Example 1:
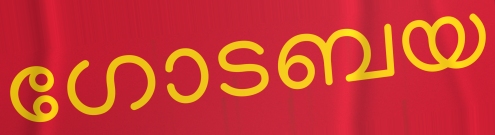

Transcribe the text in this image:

ഗോടബയ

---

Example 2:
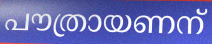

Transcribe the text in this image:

പൗത്രായണന്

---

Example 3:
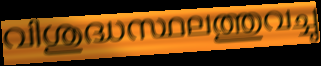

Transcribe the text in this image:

വിശുദ്ധസ്ഥലത്തുവച്ചു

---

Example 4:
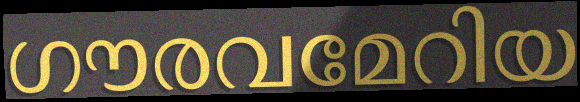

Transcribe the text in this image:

ഗൗരവമേറിയ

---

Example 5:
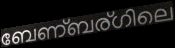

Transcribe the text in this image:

ബേണ്ബര്ഗിലെ